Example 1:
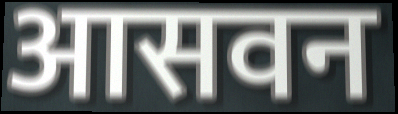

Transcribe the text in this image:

आसवन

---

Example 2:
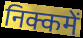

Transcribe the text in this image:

निक्कमें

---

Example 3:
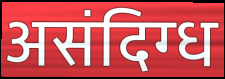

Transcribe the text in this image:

असंदिग्ध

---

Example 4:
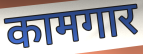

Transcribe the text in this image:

कामगार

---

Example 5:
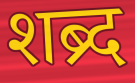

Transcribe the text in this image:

शब्र्द